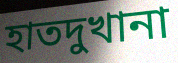
হাতদুখানা